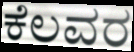
ಕೆಲವರ